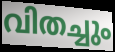
വിതച്ചും